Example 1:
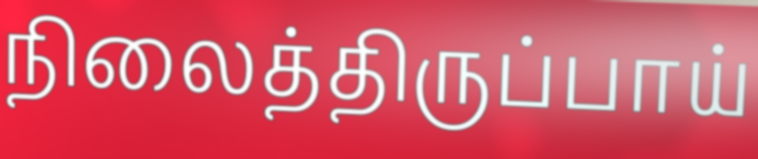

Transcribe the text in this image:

நிலைத்திருப்பாய்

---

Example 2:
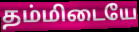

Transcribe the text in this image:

தம்மிடையே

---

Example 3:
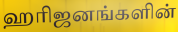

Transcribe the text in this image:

ஹரிஜனங்களின்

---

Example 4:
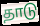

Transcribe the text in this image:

தாடு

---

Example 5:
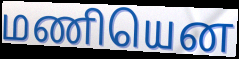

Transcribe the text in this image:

மணியென